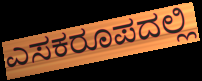
ಎಸಕರೂಪದಲ್ಲಿ